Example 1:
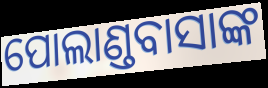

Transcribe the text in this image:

ପୋଲାଣ୍ଡବାସାଙ୍କ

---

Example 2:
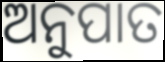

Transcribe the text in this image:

ଅନୁପାତ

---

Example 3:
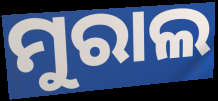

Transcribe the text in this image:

ମୁରାଲ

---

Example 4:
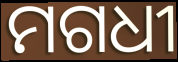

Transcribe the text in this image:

ମଗଧୀ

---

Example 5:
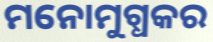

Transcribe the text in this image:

ମନୋମୁଗ୍ଧକର